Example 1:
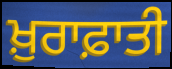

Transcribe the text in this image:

ਖ਼ੁਰਾਫ਼ਾਤੀ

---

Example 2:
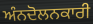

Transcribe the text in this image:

ਅੰਨਦੋਲਨਕਾਰੀ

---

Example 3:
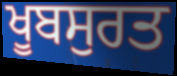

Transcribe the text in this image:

ਖੂਬਸੁਰਤ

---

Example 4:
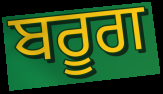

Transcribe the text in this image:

ਬਰੂਗ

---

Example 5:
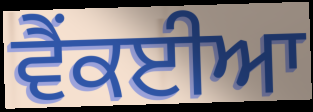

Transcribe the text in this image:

ਵੈਂਕਈਆ